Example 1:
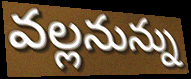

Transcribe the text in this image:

వల్లనున్ను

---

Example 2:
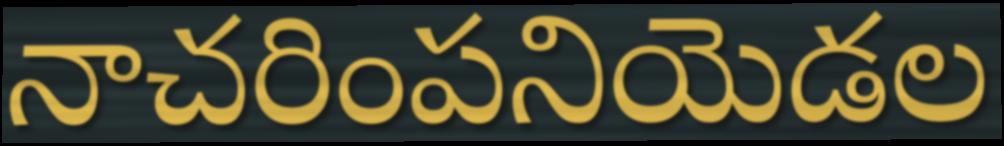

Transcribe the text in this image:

నాచరింపనియెడల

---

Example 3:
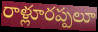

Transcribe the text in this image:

రాళ్లూరప్పలూ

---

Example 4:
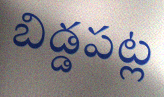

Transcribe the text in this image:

బిడ్డపట్ల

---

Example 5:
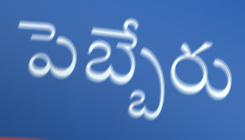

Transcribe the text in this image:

పెబ్బేరు